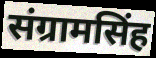
संग्रामसिंह